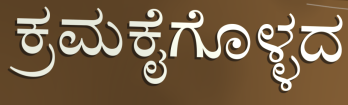
ಕ್ರಮಕೈಗೊಳ್ಳದ